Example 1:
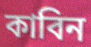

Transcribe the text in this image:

কাবিন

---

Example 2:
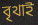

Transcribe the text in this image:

বৃথাই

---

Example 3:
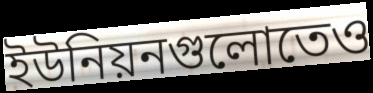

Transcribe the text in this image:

ইউনিয়নগুলোতেও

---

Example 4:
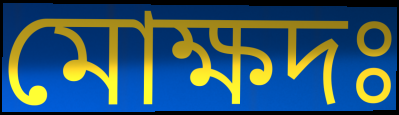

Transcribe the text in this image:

মোক্ষদঃ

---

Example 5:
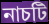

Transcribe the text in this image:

নাচটি